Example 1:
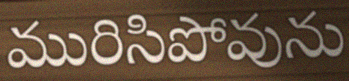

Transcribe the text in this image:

మురిసిపోవును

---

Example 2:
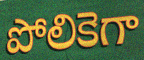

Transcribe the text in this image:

పోలికెగా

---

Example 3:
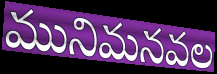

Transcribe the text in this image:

మునిమనవల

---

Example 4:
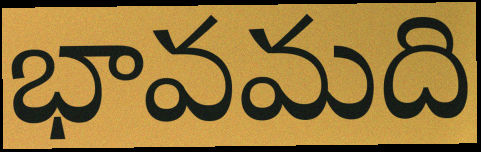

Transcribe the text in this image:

భావమది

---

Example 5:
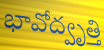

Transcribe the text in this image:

భావోద్వృత్తి